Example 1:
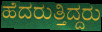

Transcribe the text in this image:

ಹೆದರುತ್ತಿದ್ದರು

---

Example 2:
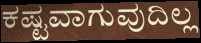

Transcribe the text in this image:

ಕಷ್ಟವಾಗುವುದಿಲ್ಲ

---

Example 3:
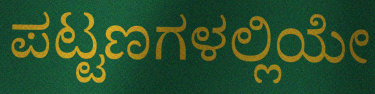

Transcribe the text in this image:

ಪಟ್ಟಣಗಳಲ್ಲಿಯೇ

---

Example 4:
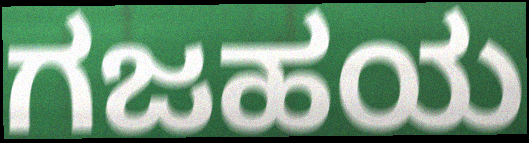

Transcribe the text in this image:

ಗಜಹಯ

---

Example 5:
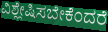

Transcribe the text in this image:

ವಿಶ್ಲೇಷಿಸಬೇಕೆಂದರೆ